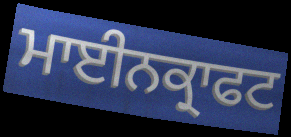
ਮਾਈਨਕ੍ਰਾਫਟ